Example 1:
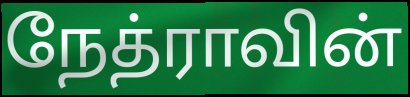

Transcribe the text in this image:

நேத்ராவின்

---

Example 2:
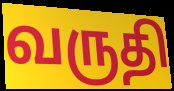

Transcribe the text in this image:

வருதி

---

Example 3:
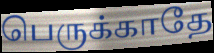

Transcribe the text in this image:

பெருக்காதே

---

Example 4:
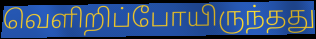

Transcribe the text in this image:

வெளிறிப்போயிருந்தது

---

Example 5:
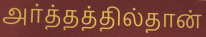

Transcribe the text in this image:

அர்த்தத்தில்தான்